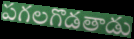
పగలగొడతాడు